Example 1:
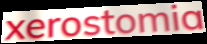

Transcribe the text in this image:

xerostomia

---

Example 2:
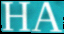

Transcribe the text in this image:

HA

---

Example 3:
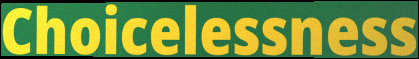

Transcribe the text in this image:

Choicelessness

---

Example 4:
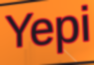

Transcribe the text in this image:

Yepi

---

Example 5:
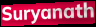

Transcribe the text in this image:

Suryanath